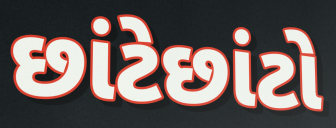
છાંટેછાંટો